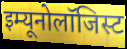
इम्यूनोलॉजिस्ट